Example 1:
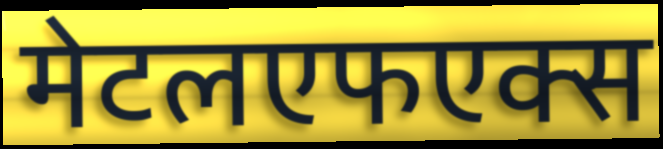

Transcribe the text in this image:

मेटलएफएक्स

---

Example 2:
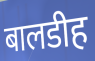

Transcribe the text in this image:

बालडीह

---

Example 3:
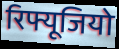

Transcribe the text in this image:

रिफ्यूजियो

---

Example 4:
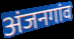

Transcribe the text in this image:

अंजनगांव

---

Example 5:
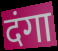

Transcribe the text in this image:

दंगा